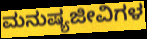
ಮನುಷ್ಯಜೀವಿಗಳ